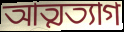
আত্মত্যাগ